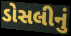
ડોસલીનું